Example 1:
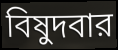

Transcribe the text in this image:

বিষুদবার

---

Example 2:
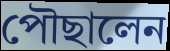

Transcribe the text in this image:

পৌছালেন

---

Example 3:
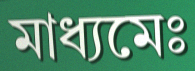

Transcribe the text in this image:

মাধ্যমেঃ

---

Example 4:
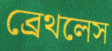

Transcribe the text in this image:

ব্রেথলেস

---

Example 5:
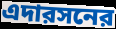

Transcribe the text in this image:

এদারসনের